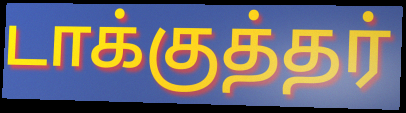
டாக்குத்தர்